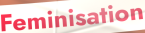
Feminisation